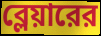
ব্লেয়ারের